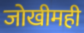
जोखीमही